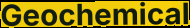
Geochemical